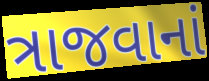
ત્રાજવાનાં